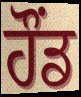
ਹੌਂਡ